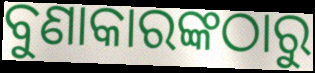
ବୁଣାକାରଙ୍କଠାରୁ